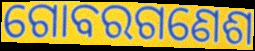
ଗୋବରଗଣେଶ